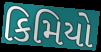
કિમિયો